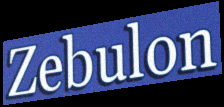
Zebulon